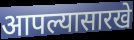
आपल्यासारखे